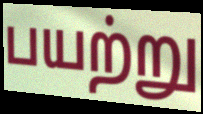
பயற்று